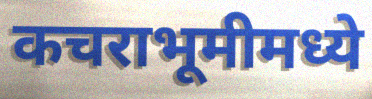
कचराभूमीमध्ये